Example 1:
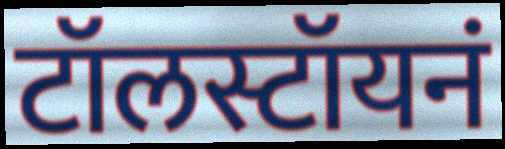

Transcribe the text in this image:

टॉलस्टॉयनं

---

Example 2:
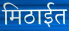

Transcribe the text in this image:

मिठाईत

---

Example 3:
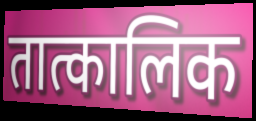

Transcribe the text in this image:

तात्कालिक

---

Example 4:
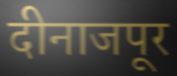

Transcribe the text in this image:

दीनाजपूर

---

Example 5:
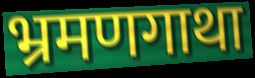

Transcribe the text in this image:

भ्रमणगाथा